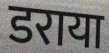
डराया